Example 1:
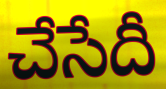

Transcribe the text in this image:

చేసేదీ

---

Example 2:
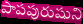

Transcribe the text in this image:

పాపపురుషుని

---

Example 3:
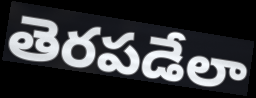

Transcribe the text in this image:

తెరపడేలా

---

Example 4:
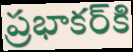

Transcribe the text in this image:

ప్రభాకర్‌కి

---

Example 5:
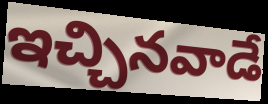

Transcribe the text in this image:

ఇచ్చినవాడే